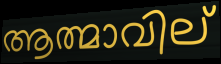
ആത്മാവില്